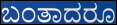
ಬಂತಾದರೂ